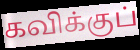
கவிக்குப்